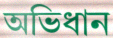
অভিধান